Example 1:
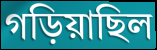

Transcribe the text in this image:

গড়িয়াছিল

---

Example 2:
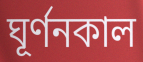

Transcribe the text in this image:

ঘূর্ণনকাল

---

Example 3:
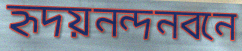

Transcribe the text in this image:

হৃদয়নন্দনবনে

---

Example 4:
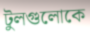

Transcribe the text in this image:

টুলগুলোকে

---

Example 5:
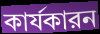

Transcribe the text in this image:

কার্যকারন